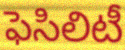
ఫెసిలిటీ